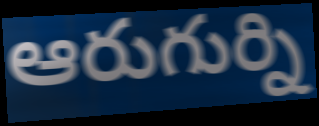
ఆరుగుర్ని